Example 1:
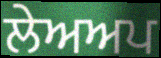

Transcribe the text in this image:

ਲੇਅਅਪ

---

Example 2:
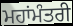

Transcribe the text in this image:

ਮਹਾਂਮੰਤਰੀ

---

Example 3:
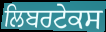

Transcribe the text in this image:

ਲਿਬਰਟੇਕਸ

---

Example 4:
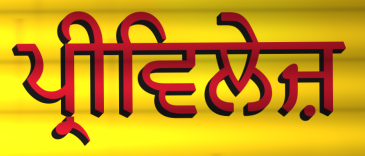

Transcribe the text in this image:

ਪ੍ਰੀਵਿਲੇਜ਼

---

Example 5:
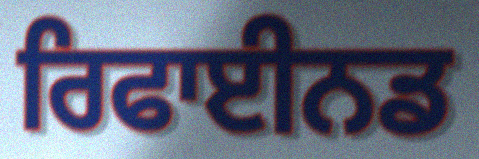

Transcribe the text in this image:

ਰਿਫਾਈਨਡ